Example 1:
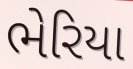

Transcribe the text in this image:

ભેરિયા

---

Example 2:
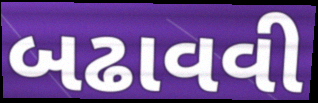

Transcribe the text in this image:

બઢાવવી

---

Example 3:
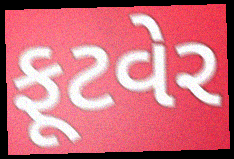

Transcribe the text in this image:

ફૂટવેર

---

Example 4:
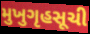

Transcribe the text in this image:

મુખુગૃહસૂચી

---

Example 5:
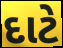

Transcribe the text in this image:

દાટે